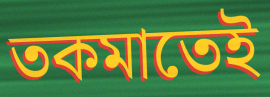
তকমাতেই